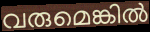
വരുമെങ്കിൽ